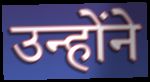
उन्‍होंने